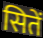
सितें